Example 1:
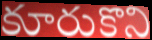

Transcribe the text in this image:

కూరుకొని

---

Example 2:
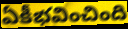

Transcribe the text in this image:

ఏకీభవించింది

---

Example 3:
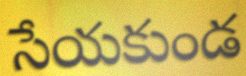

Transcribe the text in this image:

సేయకుండ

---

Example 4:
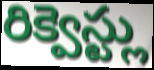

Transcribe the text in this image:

రిక్వెస్ట్లు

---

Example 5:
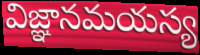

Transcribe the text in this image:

విజ్ఞానమయస్య